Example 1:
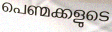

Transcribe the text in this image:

പെണ്മക്കളുടെ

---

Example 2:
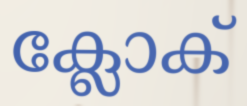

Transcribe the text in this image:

ക്ലോക്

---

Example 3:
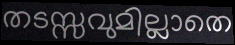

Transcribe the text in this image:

തടസ്സവുമില്ലാതെ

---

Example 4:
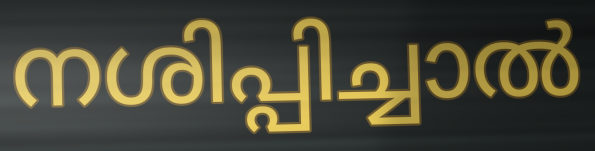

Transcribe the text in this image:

നശിപ്പിച്ചാൽ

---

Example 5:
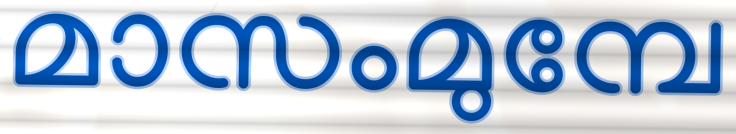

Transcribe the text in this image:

മാസംമുമ്പേ